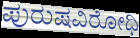
ಪುರುಷವಿರೋಧಿ